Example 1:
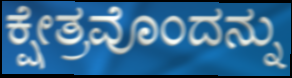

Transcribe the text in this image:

ಕ್ಷೇತ್ರವೊಂದನ್ನು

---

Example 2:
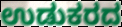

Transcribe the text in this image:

ಉಡುಕರದ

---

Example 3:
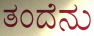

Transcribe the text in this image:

ತಂದೆನು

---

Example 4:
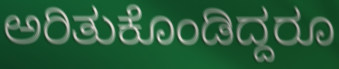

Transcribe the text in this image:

ಅರಿತುಕೊಂಡಿದ್ದರೂ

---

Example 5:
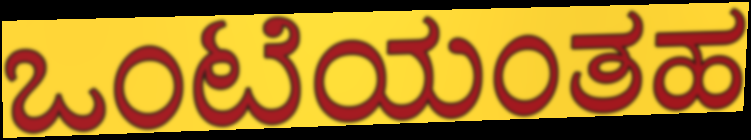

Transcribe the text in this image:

ಒಂಟೆಯಂತಹ